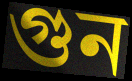
গুন